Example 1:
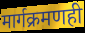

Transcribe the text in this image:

मार्गक्रमणही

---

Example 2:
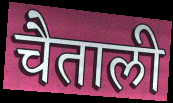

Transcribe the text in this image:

चैताली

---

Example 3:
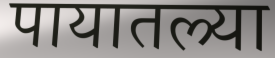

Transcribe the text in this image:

पायातल्या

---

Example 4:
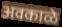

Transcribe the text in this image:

अवकाळे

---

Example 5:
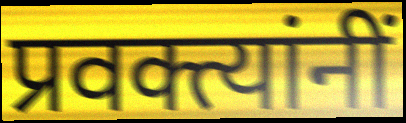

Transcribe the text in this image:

प्रवक्त्यांनीं